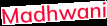
Madhwani